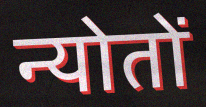
न्योतों